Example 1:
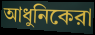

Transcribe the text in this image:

আধুনিকেরা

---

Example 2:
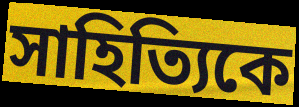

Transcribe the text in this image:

সাহিত্যিকে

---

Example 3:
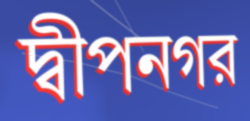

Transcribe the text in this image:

দ্বীপনগর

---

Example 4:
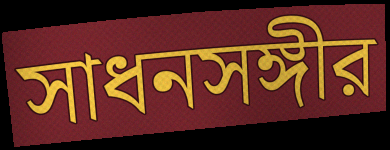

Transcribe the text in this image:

সাধনসঙ্গীর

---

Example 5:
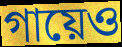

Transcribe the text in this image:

গায়েও